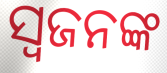
ସ୍ଵଜନଙ୍କ